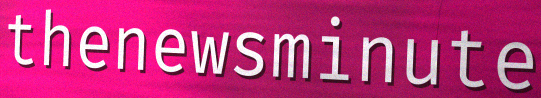
thenewsminute